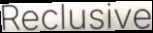
Reclusive